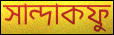
সান্দাকফু